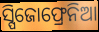
ସ୍ପିଜୋଫ୍ରେନିଆ